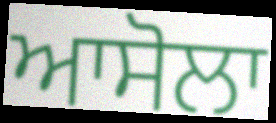
ਆਸੋਲਾ